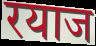
रयाज